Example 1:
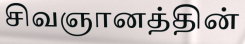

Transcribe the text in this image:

சிவஞானத்தின்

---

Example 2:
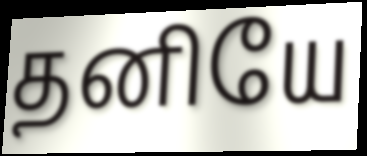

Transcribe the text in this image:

தனியே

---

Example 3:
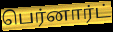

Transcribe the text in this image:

பெர்னார்ட்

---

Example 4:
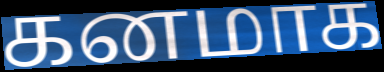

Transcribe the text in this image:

கனமாக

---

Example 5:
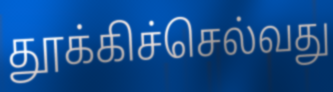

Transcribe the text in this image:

தூக்கிச்செல்வது